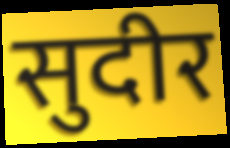
सुदीर